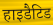
हाइडैटिड